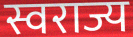
स्वराज्य